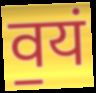
व॒यं